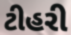
ટીહરી